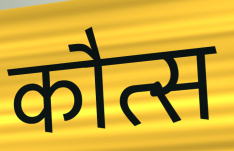
कौत्स